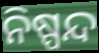
ନିଷ୍ପନ୍ଦ